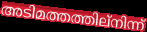
അടിമത്തത്തില്നിന്ന്